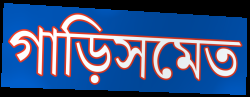
গাড়িসমেত